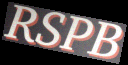
RSPB